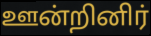
ஊன்றினிர்